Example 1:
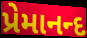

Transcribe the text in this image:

પ્રેમાનન્દ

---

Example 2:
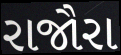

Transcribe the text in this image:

રાજૌરા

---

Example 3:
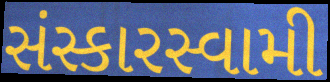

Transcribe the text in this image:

સંસ્કારસ્વામી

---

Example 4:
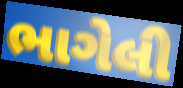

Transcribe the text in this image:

ભાગેલી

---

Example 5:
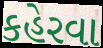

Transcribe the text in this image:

કહેરવા